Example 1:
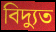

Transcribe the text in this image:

বিদ্যুত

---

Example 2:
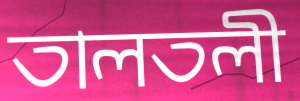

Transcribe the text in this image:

তালতলী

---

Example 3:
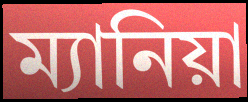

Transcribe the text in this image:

ম্যানিয়া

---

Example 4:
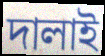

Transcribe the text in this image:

দালাই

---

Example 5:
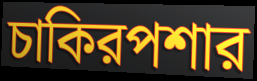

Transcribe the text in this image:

চাকিরপশার